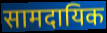
सामदायिक